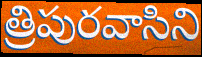
త్రిపురవాసిని